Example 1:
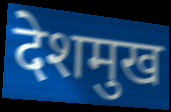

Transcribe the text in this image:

देशमुख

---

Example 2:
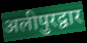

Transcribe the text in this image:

अलीपुरद्वार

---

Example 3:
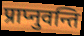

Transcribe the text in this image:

प्राप्नुवन्ति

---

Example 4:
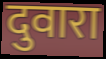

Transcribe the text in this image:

दुवारा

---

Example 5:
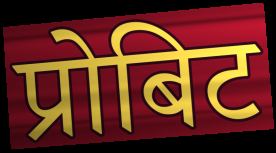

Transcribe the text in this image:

प्रोबिट